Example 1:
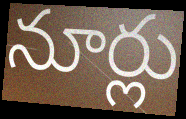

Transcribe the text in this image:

నూర్లు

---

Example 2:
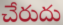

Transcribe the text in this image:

చేరుదు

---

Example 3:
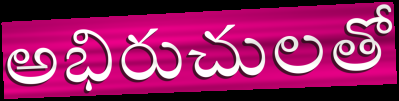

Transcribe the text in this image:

అభిరుచులతో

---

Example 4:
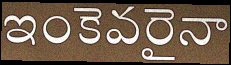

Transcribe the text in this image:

ఇంకెవరైనా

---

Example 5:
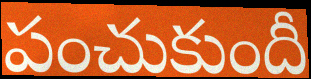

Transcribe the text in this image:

పంచుకుందీ